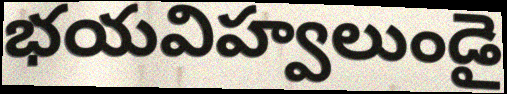
భయవిహ్వలుండై